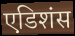
एडिशंस